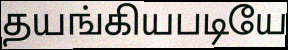
தயங்கியபடியே